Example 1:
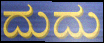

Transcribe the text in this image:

ದುದು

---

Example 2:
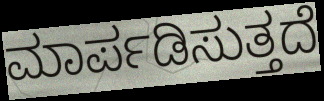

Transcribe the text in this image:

ಮಾರ್ಪಡಿಸುತ್ತದೆ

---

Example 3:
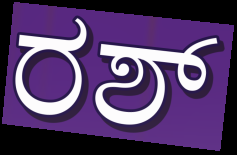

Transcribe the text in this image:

ರಶ್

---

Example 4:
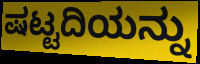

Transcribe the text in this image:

ಷಟ್ಟದಿಯನ್ನು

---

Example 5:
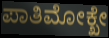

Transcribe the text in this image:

ಪಾತಿಮೋಕ್ಖೇ